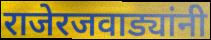
राजेरजवाड्यांनी